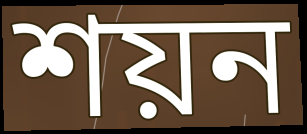
শয়ন